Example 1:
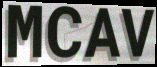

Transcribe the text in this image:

MCAV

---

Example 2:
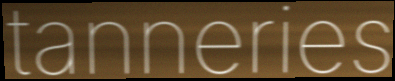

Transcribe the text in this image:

tanneries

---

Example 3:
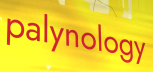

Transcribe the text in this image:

palynology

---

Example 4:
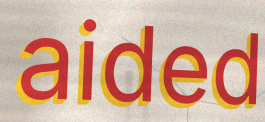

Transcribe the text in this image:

aided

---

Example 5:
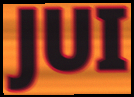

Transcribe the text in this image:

JUI